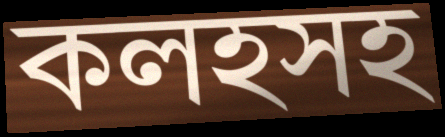
কলহসহ